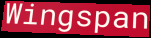
Wingspan